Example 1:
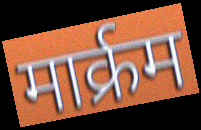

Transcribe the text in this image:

मार्क्रम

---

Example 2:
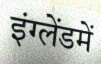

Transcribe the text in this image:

इंग्लेंडमें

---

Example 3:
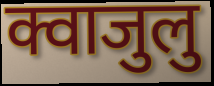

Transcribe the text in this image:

क्वाजुलु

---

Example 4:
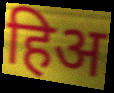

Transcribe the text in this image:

हिअ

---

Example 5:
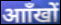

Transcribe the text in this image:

आाँखों